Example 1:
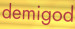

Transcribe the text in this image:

demigod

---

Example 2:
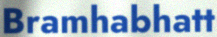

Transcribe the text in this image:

Bramhabhatt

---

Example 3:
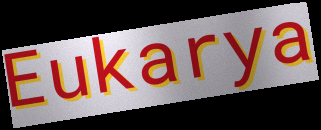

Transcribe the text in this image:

Eukarya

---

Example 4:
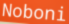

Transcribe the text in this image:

Noboni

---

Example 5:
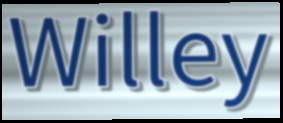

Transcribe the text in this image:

Willey